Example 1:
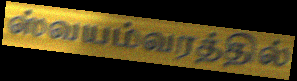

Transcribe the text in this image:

ஸ்வயம்வரத்தில்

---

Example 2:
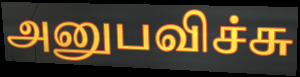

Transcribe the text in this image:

அனுபவிச்சு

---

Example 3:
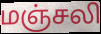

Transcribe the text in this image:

மஞ்சலி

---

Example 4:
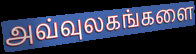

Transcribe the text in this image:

அவ்வுலகங்களை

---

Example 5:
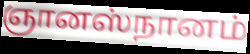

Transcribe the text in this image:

ஞானஸ்நானம்